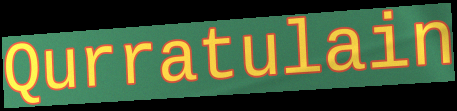
Qurratulain